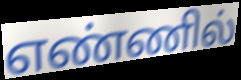
எண்ணில்